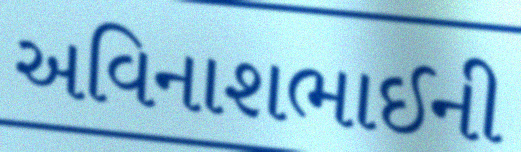
અવિનાશભાઈની